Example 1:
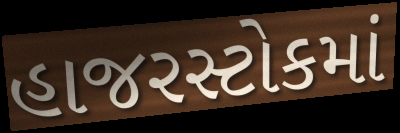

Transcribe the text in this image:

હાજરસ્ટોકમાં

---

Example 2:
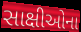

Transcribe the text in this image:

સાક્ષીઓના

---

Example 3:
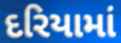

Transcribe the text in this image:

દરિયામાં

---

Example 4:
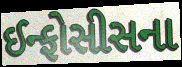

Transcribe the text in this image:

ઈન્ફોસીસના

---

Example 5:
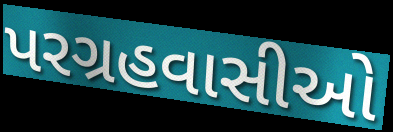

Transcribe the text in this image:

પરગ્રહવાસીઓ